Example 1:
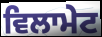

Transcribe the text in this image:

ਵਿਲਾਮੇਟ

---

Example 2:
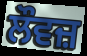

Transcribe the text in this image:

ਲੌਵਜ਼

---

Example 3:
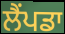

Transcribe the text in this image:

ਲੈਂਪਡਾ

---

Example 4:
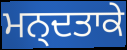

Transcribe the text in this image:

ਮਨ੍ਦਤਾਕੇ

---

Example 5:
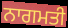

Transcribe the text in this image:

ਨਾਗਮਤੀ